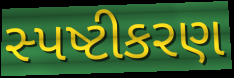
સ્પષ્ટીકરણ